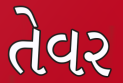
તેવર